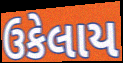
ઉકેલાય